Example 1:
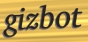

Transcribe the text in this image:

gizbot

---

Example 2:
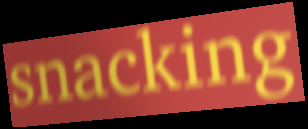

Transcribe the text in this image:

snacking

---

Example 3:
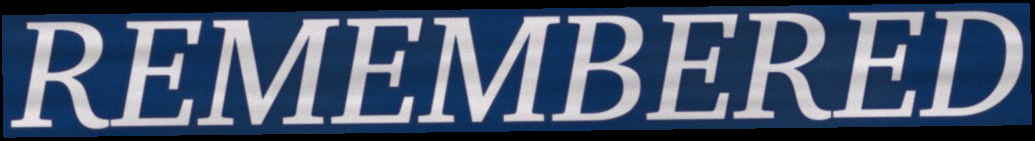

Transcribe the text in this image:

REMEMBERED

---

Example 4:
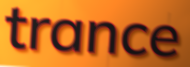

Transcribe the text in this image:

trance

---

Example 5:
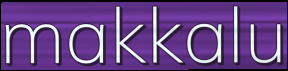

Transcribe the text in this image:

makkalu